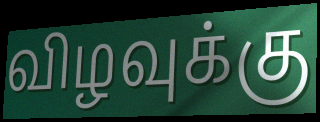
விழவுக்கு